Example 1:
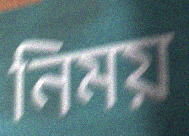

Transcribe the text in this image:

নিময়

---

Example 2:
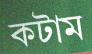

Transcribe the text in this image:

কটাম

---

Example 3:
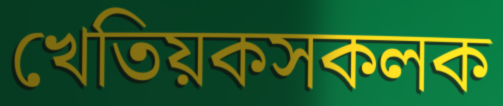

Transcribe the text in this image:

খেতিয়কসকলক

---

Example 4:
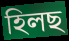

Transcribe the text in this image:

হিলছ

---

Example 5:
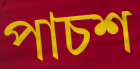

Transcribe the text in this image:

পাচশ